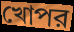
খোপর